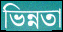
ভিন্নতা